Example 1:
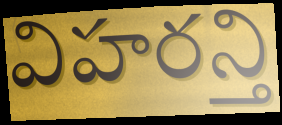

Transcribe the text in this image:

విహరన్తి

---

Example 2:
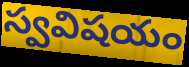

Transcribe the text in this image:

స్వవిషయం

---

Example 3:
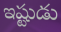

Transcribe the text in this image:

ఇష్టుడు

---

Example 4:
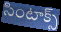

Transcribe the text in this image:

సింటాక్స్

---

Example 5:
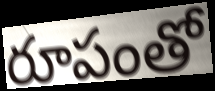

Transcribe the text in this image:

రూపంతో